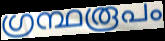
ഗ്രന്ഥരൂപം